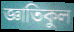
জ্ঞাতিকুল